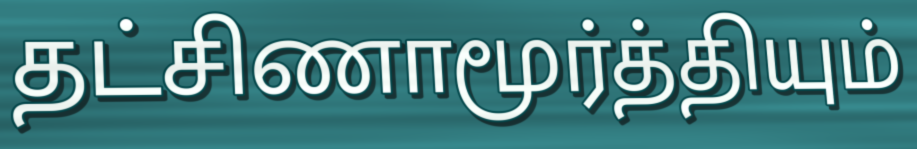
தட்சிணாமூர்த்தியும்